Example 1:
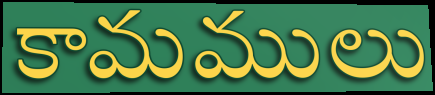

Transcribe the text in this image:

కామములు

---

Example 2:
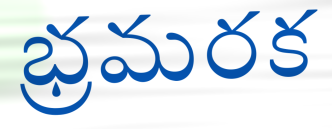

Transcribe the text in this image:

భ్రమరక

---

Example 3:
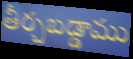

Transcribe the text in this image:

తీర్చబడ్డాము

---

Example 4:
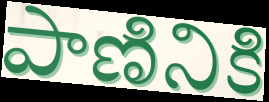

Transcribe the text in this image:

పాణినికి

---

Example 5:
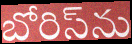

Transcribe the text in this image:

బోరిస్‌ను